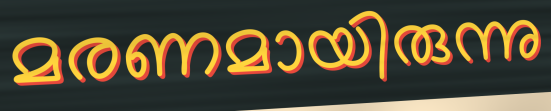
മരണമായിരുന്നു